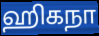
ஹிகநா